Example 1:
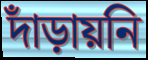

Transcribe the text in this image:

দাঁড়ায়নি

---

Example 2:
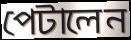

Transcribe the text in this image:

পেটালেন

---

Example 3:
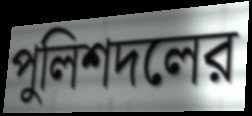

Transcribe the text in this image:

পুলিশদলের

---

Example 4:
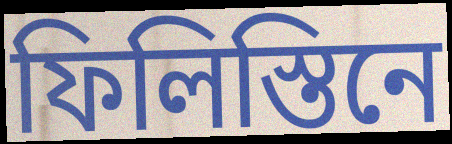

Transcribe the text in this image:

ফিলিস্তিনে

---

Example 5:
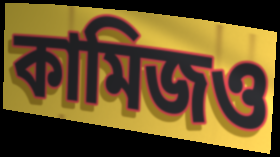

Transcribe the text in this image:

কামিজও